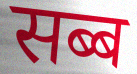
सब्ब